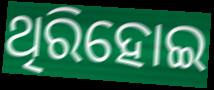
ଥିରିହୋଇ